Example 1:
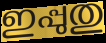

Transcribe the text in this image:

ഇപ്പുതു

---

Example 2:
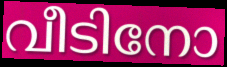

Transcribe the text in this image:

വീടിനോ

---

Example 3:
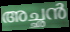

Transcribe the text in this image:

അച്ഛൻ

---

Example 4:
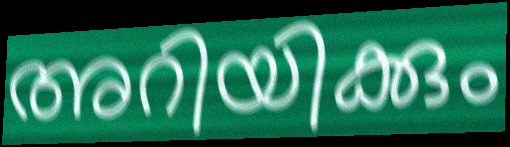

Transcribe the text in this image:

അറിയിക്കും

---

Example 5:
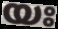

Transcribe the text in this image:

യഃ